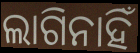
ଲାଗିନାହିଁ